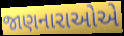
જાણનારાઓએ